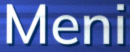
Meni